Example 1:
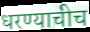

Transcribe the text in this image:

धरण्याचीच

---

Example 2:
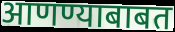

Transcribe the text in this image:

आणण्याबाबत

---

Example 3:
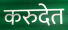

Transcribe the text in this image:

करुदेत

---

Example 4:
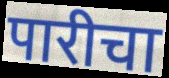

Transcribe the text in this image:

पारीचा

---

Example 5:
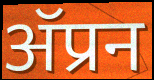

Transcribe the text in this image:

ॲप्रन